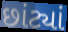
છાંટ્યાં